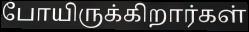
போயிருக்கிறார்கள்